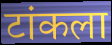
टांकला